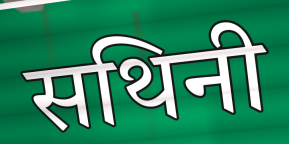
सथिनी